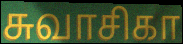
சுவாசிகா